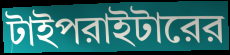
টাইপরাইটারের